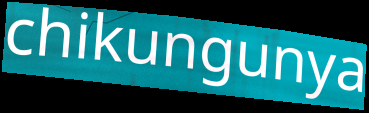
chikungunya